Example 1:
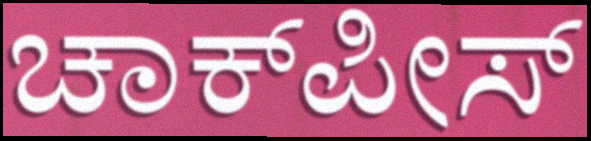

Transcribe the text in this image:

ಚಾಕ್‍ಪೀಸ್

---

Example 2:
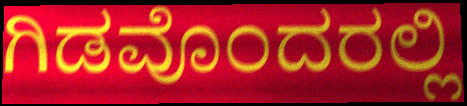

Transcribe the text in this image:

ಗಿಡವೊಂದರಲ್ಲಿ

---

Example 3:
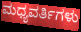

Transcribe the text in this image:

ಮಧ್ಯವರ್ತಿಗಳು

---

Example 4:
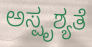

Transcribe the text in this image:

ಅಸ್ಪೃಶ್ಯತೆ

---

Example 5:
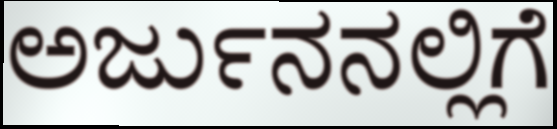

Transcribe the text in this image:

ಅರ್ಜುನನಲ್ಲಿಗೆ